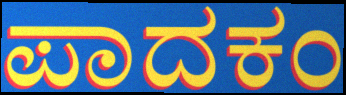
ಪಾದಕಂ